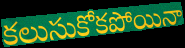
కలుసుకోకపోయినా